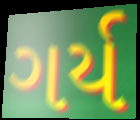
ગર્ય